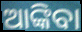
ଆଙ୍କିବା